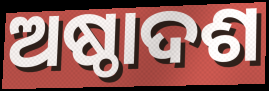
ଅଷ୍ଠାଦଶ